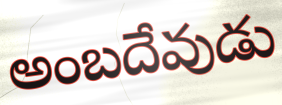
అంబదేవుడు